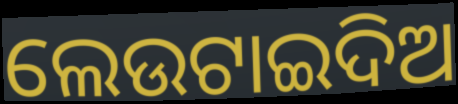
ଲେଉଟାଇଦିଅ